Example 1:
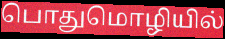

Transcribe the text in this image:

பொதுமொழியில்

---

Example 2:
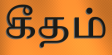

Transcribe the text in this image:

கீதம்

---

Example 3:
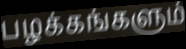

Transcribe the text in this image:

பழக்கங்களும்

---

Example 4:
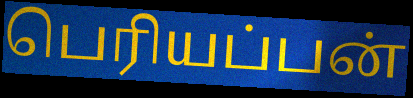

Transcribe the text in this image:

பெரியப்பன்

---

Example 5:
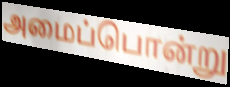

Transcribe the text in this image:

அமைப்பொன்று